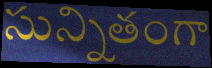
సున్నితంగా